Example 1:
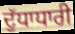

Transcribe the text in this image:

ਦੁੱਧਾਧਾਰੀ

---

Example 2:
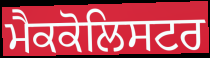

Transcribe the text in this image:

ਮੈਕਕੋਲਿਸਟਰ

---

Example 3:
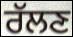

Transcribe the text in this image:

ਰੱਲਣ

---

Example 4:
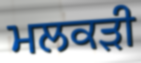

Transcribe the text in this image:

ਮਲਕੜੀ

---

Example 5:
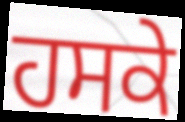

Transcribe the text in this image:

ਹਸਕੇ